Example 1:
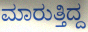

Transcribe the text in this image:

ಮಾರುತ್ತಿದ್ದ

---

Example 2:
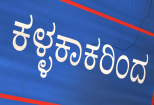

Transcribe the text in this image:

ಕಳ್ಳಕಾಕರಿಂದ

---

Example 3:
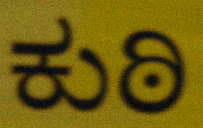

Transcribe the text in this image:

ಕುಠಿ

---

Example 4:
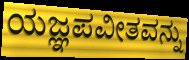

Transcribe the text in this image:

ಯಜ್ಞಪವೀತವನ್ನು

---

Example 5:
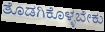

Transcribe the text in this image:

ತೊಡಗಿಕೊಳ್ಳಬೇಕು